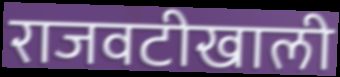
राजवटीखाली